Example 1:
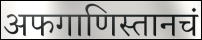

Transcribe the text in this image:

अफगाणिस्तानचं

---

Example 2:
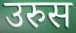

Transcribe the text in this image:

उरुस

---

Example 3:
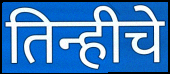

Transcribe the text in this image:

तिन्हीचे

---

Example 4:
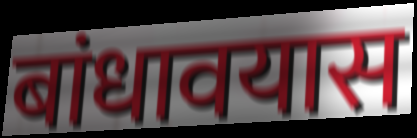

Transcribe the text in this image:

बांधावयास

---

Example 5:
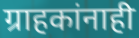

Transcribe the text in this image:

ग्राहकांनाही